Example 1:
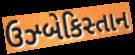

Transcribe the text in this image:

ઉઝ્બેકિસ્તાન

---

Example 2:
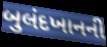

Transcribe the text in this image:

બુલંદખાનની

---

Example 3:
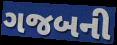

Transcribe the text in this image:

ગજબની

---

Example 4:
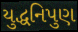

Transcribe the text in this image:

યુદ્ધનિપુણ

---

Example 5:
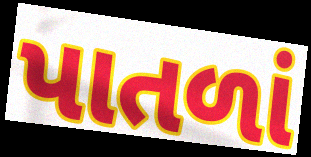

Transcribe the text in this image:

પાતળાં